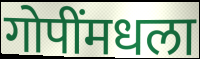
गोपींमधला